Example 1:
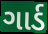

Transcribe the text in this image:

ગાર્ડ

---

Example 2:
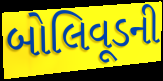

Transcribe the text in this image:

બોલિવૂડની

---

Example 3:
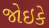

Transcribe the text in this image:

જોઇકે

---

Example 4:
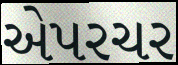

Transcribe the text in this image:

એપરચર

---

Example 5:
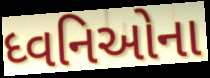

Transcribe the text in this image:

ધ્વનિઓના